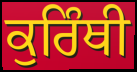
ਕੁਰਿੰਥੀ